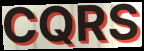
CQRS